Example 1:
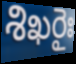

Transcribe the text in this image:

శిఖరైః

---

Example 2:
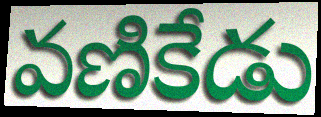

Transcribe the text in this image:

వణికేడు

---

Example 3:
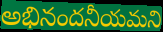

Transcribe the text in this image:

అభినందనీయమని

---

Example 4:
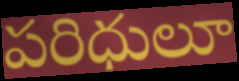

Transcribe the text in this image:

పరిధులూ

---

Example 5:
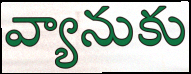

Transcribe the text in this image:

వ్యానుకు